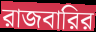
রাজবারির